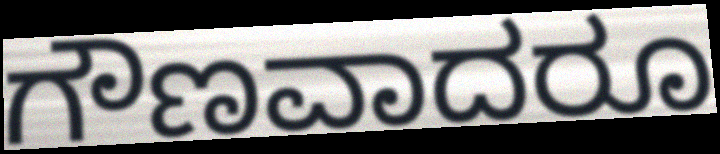
ಗೌಣವಾದರೂ